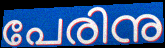
പേരിനു